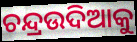
ଚନ୍ଦ୍ରଉଦିଆକୁ